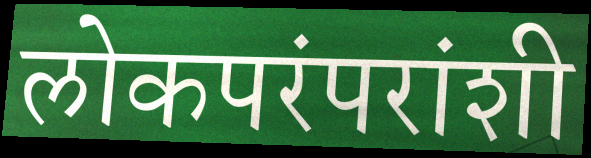
लोकपरंपरांशी